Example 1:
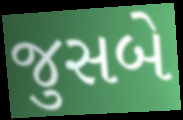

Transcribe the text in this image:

જુસબે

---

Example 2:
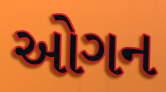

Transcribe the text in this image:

ઓગન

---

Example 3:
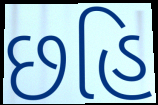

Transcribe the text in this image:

છહિ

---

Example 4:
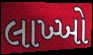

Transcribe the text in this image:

લાખ્ખો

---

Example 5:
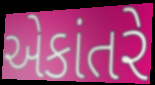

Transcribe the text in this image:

એકાંતરે